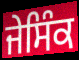
ਜੇਸਿੰਕ